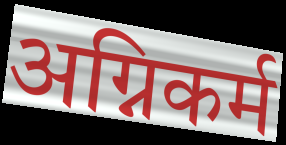
अग्निकर्म